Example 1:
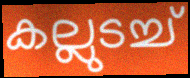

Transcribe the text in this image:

കല്ലുടച്ച്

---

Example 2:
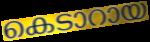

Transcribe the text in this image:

കെടാറായ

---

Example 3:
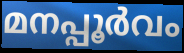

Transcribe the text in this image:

മനപ്പൂർവം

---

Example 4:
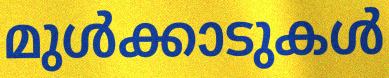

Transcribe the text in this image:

മുൾക്കാടുകൾ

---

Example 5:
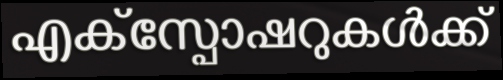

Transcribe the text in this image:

എക്സ്പോഷറുകൾക്ക്